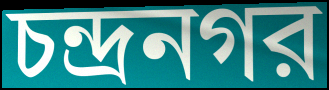
চন্দ্রনগর